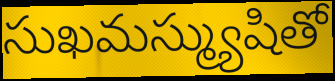
సుఖమస్మ్యుషితో